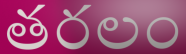
తరలం